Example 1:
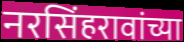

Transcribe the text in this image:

नरसिंहरावांच्या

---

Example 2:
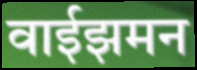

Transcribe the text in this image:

वाईझमन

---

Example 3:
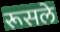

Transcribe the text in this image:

रूसले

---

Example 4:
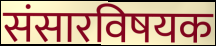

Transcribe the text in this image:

संसारविषयक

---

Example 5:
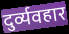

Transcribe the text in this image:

दुर्व्यवहार